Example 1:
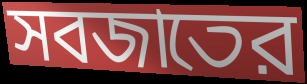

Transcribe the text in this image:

সবজাতের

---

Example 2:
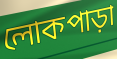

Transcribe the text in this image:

লোকপাড়া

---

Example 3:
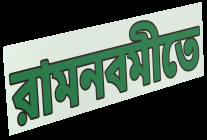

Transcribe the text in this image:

রামনবমীতে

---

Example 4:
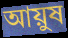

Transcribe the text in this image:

আয়ুষ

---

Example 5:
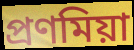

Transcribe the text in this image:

প্রণমিয়া